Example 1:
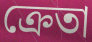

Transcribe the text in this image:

ক্ৰেতা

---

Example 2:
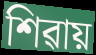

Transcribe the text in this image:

শিৱায়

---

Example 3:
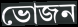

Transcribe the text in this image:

ভোজন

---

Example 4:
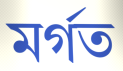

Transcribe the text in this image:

মৰ্গত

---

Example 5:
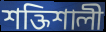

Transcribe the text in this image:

শক্তিশালী